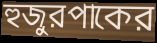
হুজুরপাকের